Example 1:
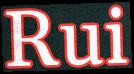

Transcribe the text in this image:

Rui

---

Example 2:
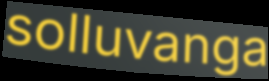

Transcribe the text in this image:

solluvanga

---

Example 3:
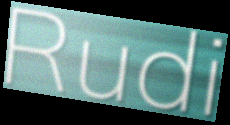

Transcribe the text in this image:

Rudi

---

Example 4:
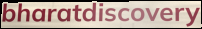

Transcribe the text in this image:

bharatdiscovery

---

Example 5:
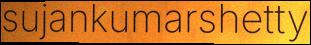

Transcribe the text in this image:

sujankumarshetty